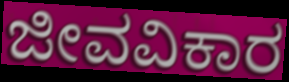
ಜೀವವಿಕಾರ